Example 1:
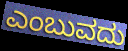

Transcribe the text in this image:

ಎಂಬುವದು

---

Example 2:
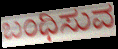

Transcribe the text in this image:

ಬಂಧಿಸುವ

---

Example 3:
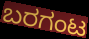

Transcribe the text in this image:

ಬರಗಂಟ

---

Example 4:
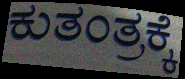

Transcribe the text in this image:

ಕುತಂತ್ರಕ್ಕೆ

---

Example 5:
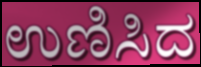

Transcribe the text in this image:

ಉಣಿಸಿದ